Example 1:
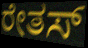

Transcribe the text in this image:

ರೇತಸ್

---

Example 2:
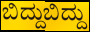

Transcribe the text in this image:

ಬಿದ್ದುಬಿದ್ದು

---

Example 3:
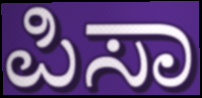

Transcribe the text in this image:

ಪಿಸಾ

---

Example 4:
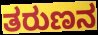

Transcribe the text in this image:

ತರುಣನ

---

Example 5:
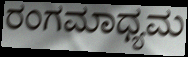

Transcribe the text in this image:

ರಂಗಮಾಧ್ಯಮ